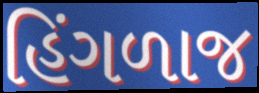
હિંગળાજ